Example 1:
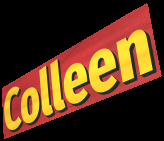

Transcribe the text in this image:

Colleen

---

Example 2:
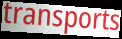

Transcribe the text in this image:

transports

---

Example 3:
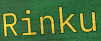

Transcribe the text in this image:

Rinku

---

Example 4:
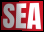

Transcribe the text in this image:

SEA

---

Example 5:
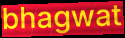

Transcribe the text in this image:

bhagwat